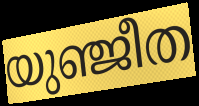
യുഞ്ജീത